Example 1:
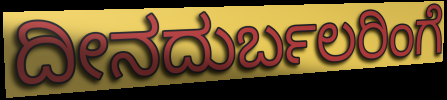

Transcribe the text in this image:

ದೀನದುರ್ಬಲರಿಂಗೆ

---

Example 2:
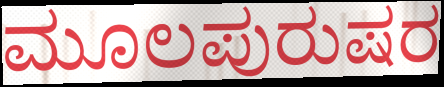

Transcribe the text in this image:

ಮೂಲಪುರುಷರ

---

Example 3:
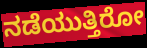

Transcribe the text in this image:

ನಡೆಯುತ್ತಿರೋ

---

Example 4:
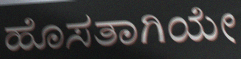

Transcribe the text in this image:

ಹೊಸತಾಗಿಯೇ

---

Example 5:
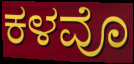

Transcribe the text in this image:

ಕಳವೊ